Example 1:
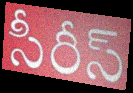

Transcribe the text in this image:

సీరీస్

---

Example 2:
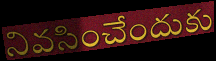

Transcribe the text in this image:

నివసించేందుకు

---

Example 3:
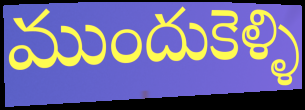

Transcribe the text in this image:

ముందుకెళ్ళి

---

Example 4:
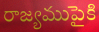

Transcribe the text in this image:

రాజ్యముపైకి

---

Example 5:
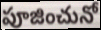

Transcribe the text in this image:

పూజించునో